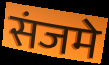
संजमे